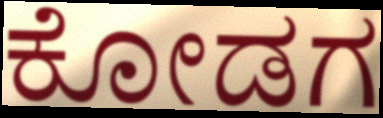
ಕೋಡಗ